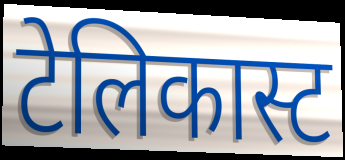
टेलिकास्ट